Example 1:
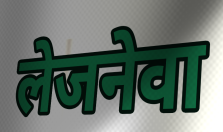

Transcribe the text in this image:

लेजनेवा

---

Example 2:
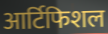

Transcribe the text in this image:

आर्टिफिशल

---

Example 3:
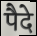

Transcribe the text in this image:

पैदे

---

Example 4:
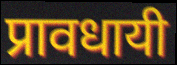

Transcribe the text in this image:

प्रावधायी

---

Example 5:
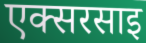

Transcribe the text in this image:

एक्सरसाइ